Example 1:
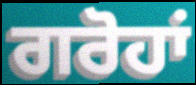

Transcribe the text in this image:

ਗਰੋਹਾਂ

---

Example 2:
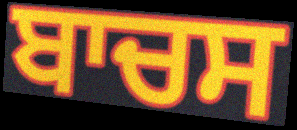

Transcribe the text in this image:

ਬਾਚਸ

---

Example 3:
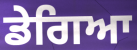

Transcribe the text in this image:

ਡੇਗਿਆ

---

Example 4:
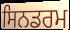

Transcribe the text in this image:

ਸਿਨਡਰਮ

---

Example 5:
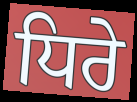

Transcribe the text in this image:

ਧਿਰੇ